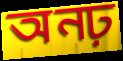
অনঢ়